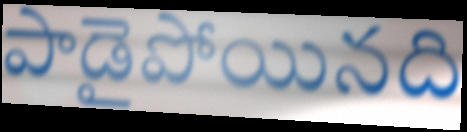
పాడైపోయినది